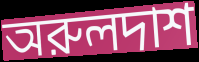
অরুলদাশ